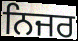
ਨਿਜਰ